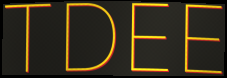
TDEE